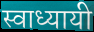
स्वाध्यायी